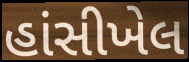
હાંસીખેલ